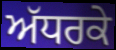
ਅੱਧਰਕੇ